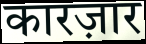
कारज़ार